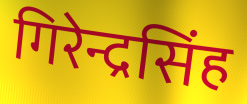
गिरेन्द्रसिंह